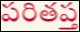
పరితప్త